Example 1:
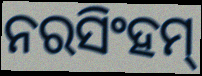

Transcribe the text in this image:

ନରସିଂହମ୍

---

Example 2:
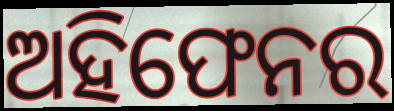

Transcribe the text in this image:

ଅହିଫେନର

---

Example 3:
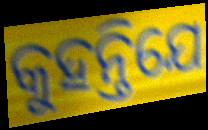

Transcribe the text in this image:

କୁହନ୍ତିଯେ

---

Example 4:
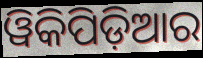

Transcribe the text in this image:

ୱିକିପିଡ଼ିଆର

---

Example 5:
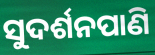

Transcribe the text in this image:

ସୁଦର୍ଶନପାଣି